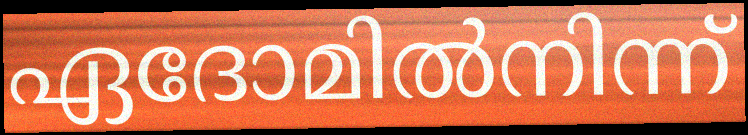
ഏദോമിൽനിന്ന്